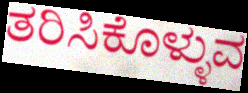
ತರಿಸಿಕೊಳ್ಳುವ